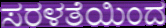
ಸರಳತೆಯಿಂದ